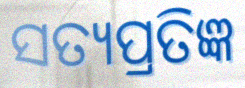
ସତ୍ୟପ୍ରତିଜ୍ଞ